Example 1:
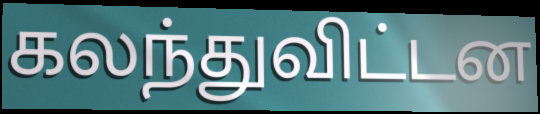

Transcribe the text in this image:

கலந்துவிட்டன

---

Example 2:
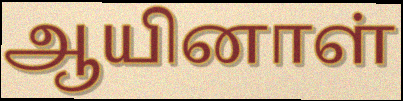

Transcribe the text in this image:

ஆயினாள்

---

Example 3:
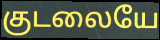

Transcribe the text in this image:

குடலையே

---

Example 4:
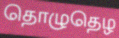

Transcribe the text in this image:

தொழுதெழ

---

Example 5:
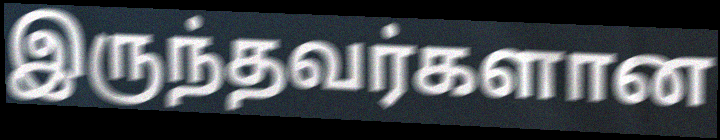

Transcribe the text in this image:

இருந்தவர்களான